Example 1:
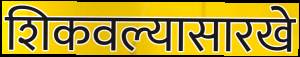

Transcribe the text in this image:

शिकवल्यासारखे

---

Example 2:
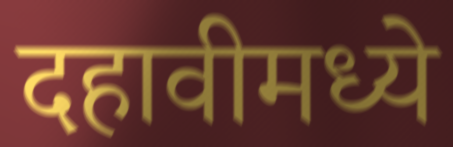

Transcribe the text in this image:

दहावीमध्ये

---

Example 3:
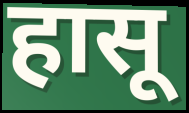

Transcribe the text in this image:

हासू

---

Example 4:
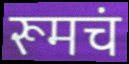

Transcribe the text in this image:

रूमचं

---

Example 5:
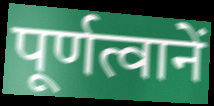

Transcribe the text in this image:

पूर्णत्वानें